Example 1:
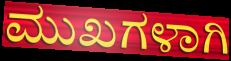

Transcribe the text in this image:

ಮುಖಗಳಾಗಿ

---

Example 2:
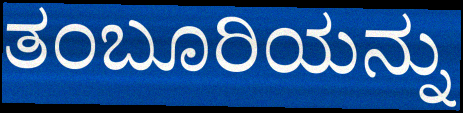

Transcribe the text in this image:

ತಂಬೂರಿಯನ್ನು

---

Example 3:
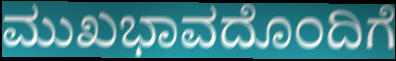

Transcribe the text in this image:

ಮುಖಭಾವದೊಂದಿಗೆ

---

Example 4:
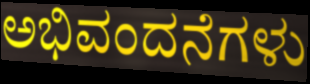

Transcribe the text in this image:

ಅಭಿವಂದನೆಗಳು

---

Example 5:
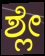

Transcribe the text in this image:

ಶ್ಲೇ